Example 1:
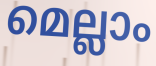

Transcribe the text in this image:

മെല്ലാം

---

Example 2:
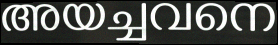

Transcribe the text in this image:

അയച്ചവനെ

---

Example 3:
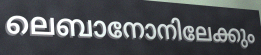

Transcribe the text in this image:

ലെബാനോനിലേക്കും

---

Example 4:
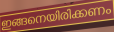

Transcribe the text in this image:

ഇങ്ങനെയിരിക്കണം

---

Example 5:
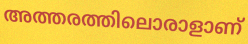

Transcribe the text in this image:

അത്തരത്തിലൊരാളാണ്